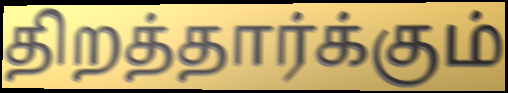
திறத்தார்க்கும்